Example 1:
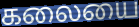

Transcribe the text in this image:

கலையை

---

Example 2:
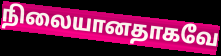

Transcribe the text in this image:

நிலையானதாகவே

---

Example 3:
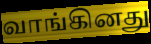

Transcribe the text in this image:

வாங்கினது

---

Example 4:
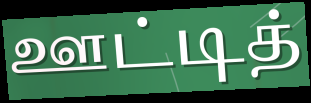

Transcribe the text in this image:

ஊட்டித்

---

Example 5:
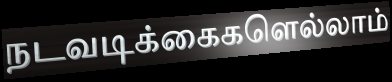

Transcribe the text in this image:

நடவடிக்கைகளெல்லாம்